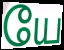
யே